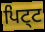
ਪਿਟ੍ਟ